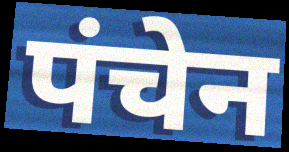
पंचेन